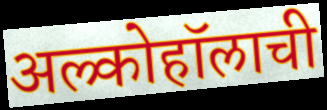
अल्कोहॉलाची